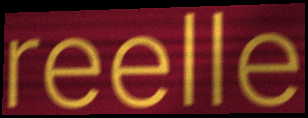
reelle